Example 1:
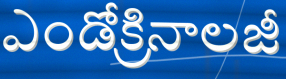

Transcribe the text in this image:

ఎండోక్రినాలజీ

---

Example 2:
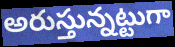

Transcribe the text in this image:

అరుస్తున్నట్టుగా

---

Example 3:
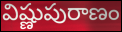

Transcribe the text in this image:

విష్ణుపురాణం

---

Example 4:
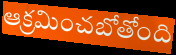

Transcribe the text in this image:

ఆక్రమించబోతోంది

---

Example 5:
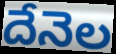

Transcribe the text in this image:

దేనెల